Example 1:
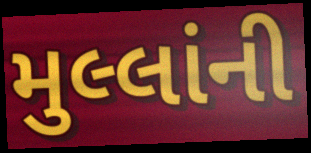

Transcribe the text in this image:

મુલ્લાંની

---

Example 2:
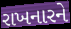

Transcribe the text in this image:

રાખનારને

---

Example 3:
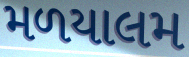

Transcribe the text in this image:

મળયાલમ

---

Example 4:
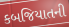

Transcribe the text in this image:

કબજિયાતની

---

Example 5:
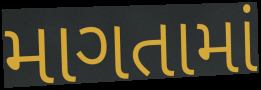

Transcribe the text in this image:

માગતામાં